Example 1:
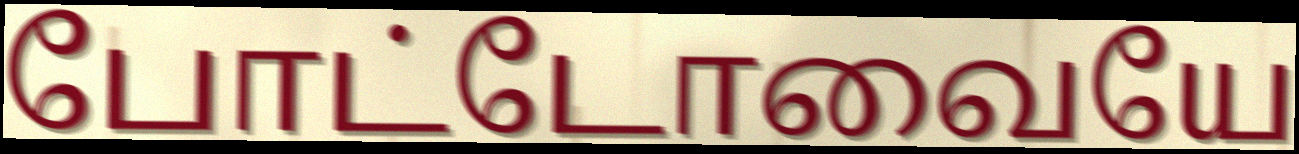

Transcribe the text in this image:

போட்டோவையே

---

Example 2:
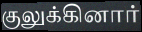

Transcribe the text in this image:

குலுக்கினார்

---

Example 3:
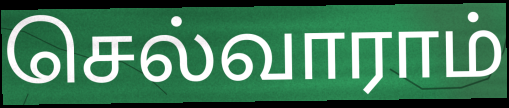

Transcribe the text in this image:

செல்வாராம்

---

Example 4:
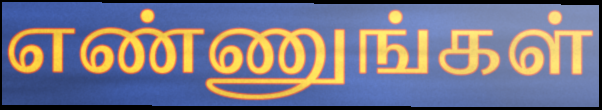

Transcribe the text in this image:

எண்ணுங்கள்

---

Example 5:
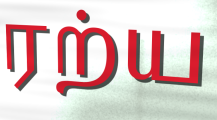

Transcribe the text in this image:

ரற்ய